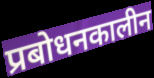
प्रबोधनकालीन